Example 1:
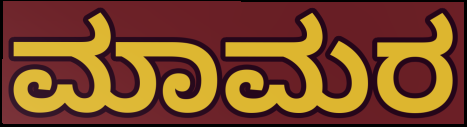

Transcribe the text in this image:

ಮಾಮರ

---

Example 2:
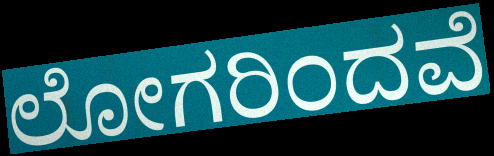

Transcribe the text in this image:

ಲೋಗರಿಂದವೆ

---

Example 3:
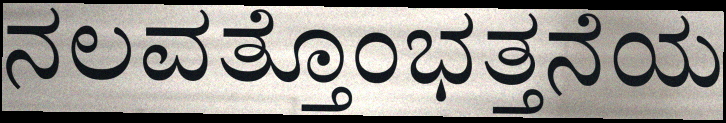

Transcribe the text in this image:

ನಲವತ್ತೊಂಭತ್ತನೆಯ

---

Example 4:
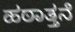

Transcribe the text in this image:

ಹಠಾತ್ತನೆ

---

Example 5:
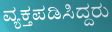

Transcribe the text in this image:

ವ್ಯಕ್ತಪಡಿಸಿದ್ದರು